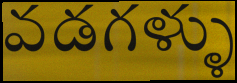
వడగళ్ళు